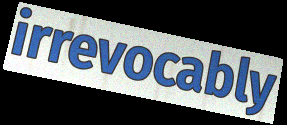
irrevocably